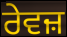
ਰੇਵਜ਼